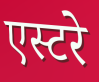
एस्टरे